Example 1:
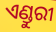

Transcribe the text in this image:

ଏଣ୍ଡୁରୀ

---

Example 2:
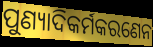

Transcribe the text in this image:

ପୁଣ୍ଯାଦିକର୍ମକରଣେନ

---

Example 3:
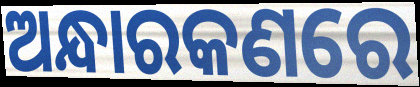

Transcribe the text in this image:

ଅନ୍ଧାରକଣରେ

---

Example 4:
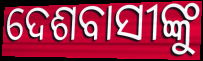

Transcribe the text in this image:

ଦେଶବାସୀଙ୍କୁ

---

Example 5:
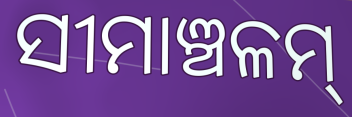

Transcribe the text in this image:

ସୀମାଞ୍ଚଳମ୍